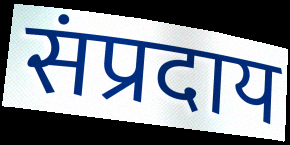
संप्रदाय